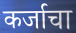
कर्जाचा